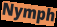
Nymph